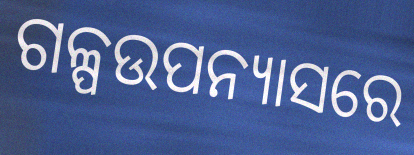
ଗଳ୍ପଉପନ୍ୟାସରେ